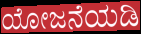
ಯೋಜನೆಯಡಿ